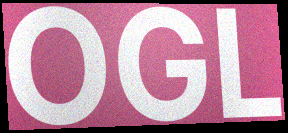
OGL